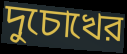
দুচোখের